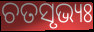
ଚତସୃଭ୍ୟଃ